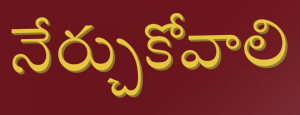
నేర్చుకోవాలి